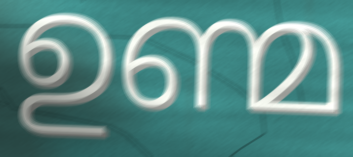
ഉണ്മ